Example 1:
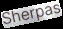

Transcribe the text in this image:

Sherpas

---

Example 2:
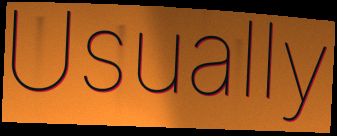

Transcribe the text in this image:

Usually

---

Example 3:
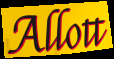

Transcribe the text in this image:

Allott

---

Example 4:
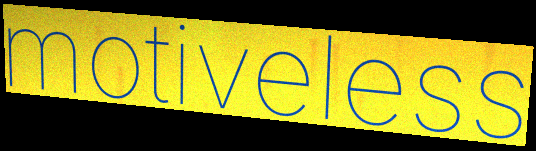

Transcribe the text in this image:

motiveless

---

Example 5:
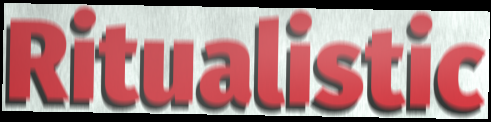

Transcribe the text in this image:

Ritualistic